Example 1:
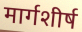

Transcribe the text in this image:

मार्गशीर्ष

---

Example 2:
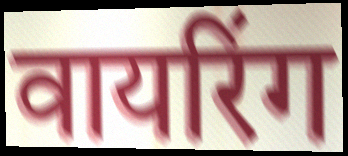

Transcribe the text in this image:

वायरिंग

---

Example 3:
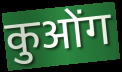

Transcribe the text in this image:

कुओंग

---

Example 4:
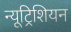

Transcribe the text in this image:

न्यूट्रिशियन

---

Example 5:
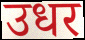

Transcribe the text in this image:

उधर